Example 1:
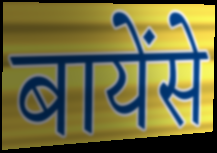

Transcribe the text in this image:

बायेंसे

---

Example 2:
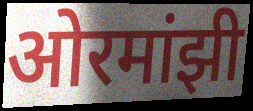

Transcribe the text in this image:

ओरमांझी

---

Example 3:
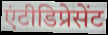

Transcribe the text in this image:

एंटीडिप्रेसेंट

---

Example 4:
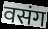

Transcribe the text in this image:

वसंग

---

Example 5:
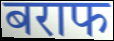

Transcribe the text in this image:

बराफ